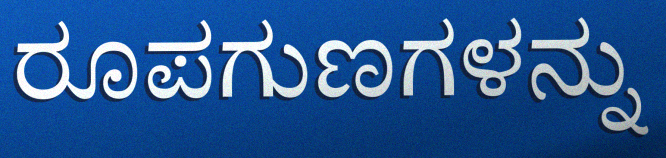
ರೂಪಗುಣಗಳನ್ನು